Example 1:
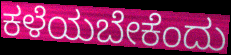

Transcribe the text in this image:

ಕಳೆಯಬೇಕೆಂದು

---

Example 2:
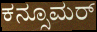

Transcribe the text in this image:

ಕನ್ಸೂಮರ್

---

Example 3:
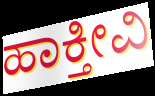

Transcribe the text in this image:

ಹಾಕ್ತೀವಿ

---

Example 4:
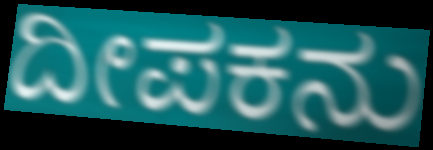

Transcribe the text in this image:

ದೀಪಕನು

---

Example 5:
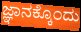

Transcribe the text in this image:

ಜ್ಞಾನಕ್ಕೊಂದು